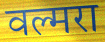
वल्मरा